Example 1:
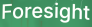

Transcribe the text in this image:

Foresight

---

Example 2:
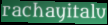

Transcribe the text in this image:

rachayitalu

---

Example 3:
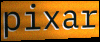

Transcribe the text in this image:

pixar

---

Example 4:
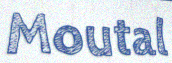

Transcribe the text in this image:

Moutal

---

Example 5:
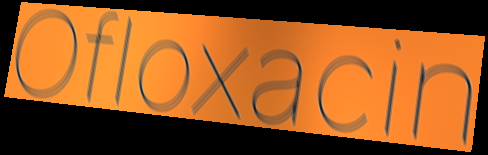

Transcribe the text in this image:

Ofloxacin